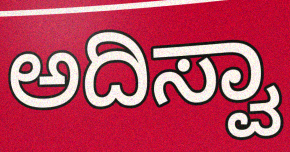
ಅದಿಸ್ವಾ